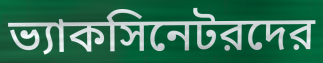
ভ্যাকসিনেটরদের